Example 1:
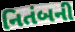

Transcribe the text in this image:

નિતંબની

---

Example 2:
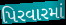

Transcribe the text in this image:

પિરવારમાં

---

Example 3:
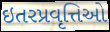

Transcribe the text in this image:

ઇતરપ્રવૃત્તિઓ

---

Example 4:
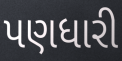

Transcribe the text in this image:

પણધારી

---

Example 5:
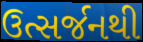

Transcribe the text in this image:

ઉત્સર્જનથી